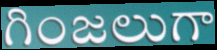
గింజలుగా